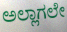
ಅಲ್ಲಾಗಲೇ